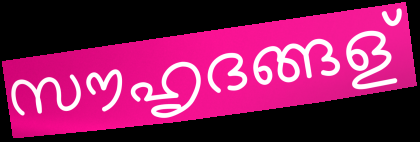
സൗഹൃദങ്ങള്